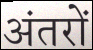
अंतरों